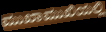
ಮುಖಾಮುಖಿಯಲ್ಲಿ